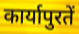
कार्यापुरतें